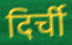
दिर्ची